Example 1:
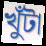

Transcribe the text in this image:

খুঁটা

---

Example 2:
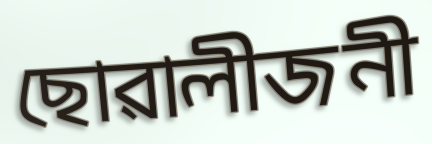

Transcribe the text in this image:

ছোৱালীজনী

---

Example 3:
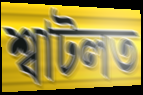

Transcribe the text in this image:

শ্বাটলত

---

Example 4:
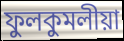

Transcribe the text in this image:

ফুলকুমলীয়া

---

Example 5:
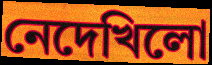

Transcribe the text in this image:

নেদেখিলো